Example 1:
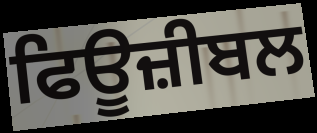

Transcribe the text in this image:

ਫਿਊਜ਼ੀਬਲ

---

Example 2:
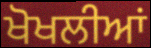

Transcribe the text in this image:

ਖੋਖਲੀਆਂ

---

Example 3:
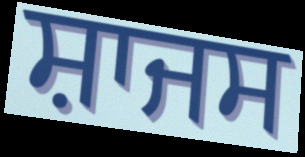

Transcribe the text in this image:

ਸ਼ਾਜਸ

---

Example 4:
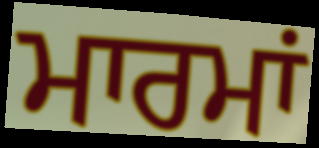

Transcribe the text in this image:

ਮਾਰਮਾਂ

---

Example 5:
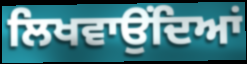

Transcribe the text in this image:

ਲਿਖਵਾਉਂਦਿਆਂ